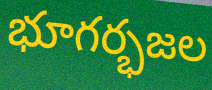
భూగర్భజల